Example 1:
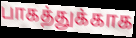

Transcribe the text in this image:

பாகத்துக்காக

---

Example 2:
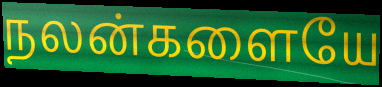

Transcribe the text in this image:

நலன்களையே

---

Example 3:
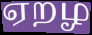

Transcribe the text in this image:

ஏறழ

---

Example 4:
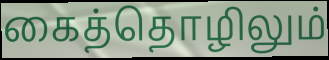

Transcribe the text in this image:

கைத்தொழிலும்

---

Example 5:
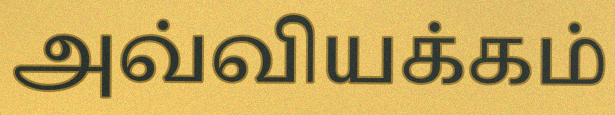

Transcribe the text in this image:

அவ்வியக்கம்